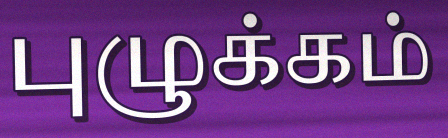
புழுக்கம்